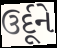
ઉર્દૂને